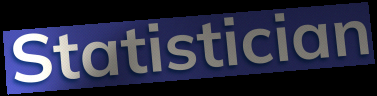
Statistician